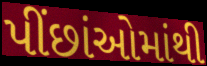
પીંછાંઓમાંથી